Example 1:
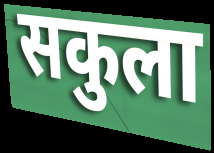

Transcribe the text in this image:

सकुला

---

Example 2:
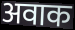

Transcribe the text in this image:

अवाक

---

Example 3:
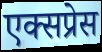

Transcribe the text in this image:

एक्सप्रेस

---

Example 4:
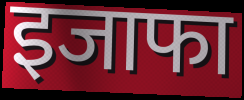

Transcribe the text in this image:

इजाफा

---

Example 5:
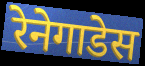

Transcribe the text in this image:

रेनेगाडेस